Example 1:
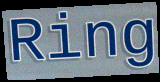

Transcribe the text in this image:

Ring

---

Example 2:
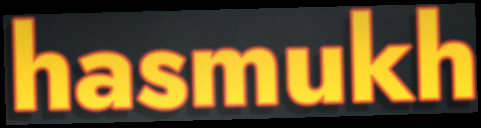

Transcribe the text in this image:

hasmukh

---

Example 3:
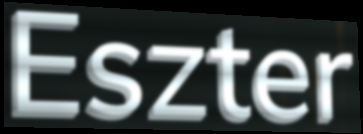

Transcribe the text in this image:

Eszter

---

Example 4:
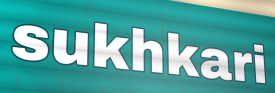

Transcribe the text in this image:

sukhkari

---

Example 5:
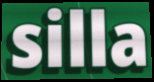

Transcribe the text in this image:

silla